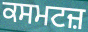
ਕਸਮਟਜ਼